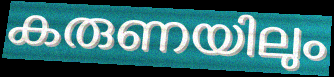
കരുണയിലും